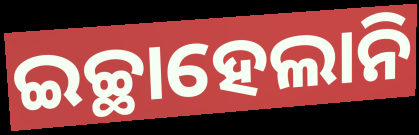
ଇଚ୍ଛାହେଲାନି